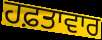
ਹਫ਼ਤਾਵਾਰ